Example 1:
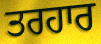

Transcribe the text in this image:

ਤਰਹਾਰ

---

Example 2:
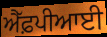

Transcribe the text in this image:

ਐੱਫ਼ਪੀਆਈ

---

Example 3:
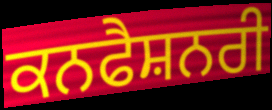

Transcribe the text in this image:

ਕਨਫੈਸ਼ਨਰੀ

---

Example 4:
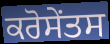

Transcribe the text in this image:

ਕਰੋਸੇਂਤਸ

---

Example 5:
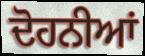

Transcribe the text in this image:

ਦੋਹਨੀਆਂ